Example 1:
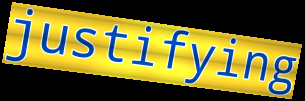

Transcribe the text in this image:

justifying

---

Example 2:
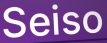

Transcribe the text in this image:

Seiso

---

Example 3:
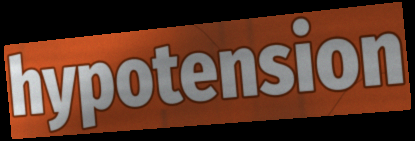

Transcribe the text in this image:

hypotension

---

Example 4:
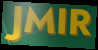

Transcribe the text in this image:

JMIR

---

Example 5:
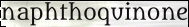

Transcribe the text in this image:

naphthoquinone